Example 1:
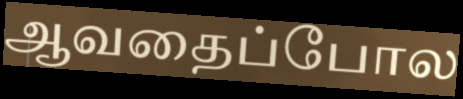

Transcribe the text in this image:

ஆவதைப்போல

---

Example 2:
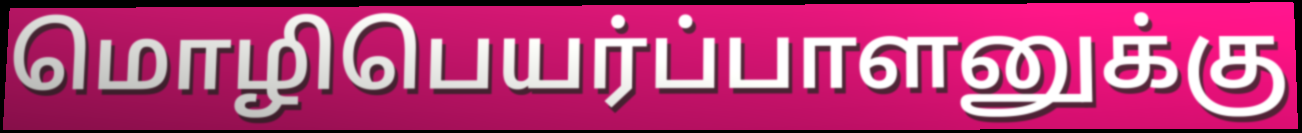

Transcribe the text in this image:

மொழிபெயர்ப்பாளனுக்கு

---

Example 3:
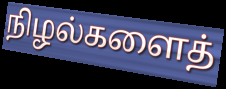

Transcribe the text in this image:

நிழல்களைத்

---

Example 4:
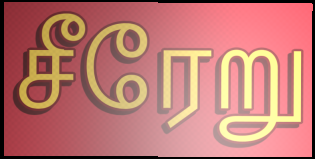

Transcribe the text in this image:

சீரேறு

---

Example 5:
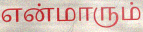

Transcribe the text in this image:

என்மாரும்